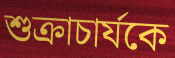
শুক্রাচার্যকে